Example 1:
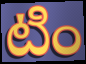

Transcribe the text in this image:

టిం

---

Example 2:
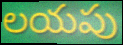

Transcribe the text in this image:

లయపు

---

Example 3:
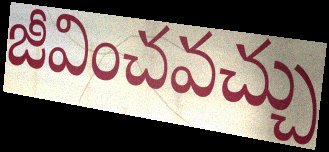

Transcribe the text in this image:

జీవించవచ్చు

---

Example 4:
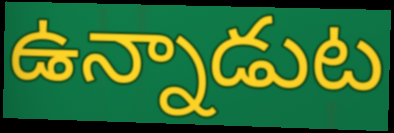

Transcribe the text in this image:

ఉన్నాడుట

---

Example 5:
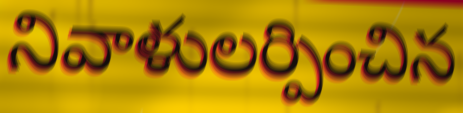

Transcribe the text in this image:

నివాళులర్పించిన